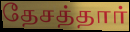
தேசத்தார்